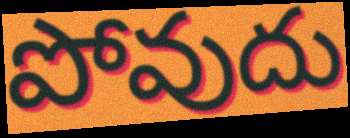
పోవుదు